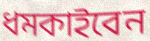
ধমকাইবেন